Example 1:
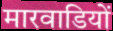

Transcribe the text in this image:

मारवाडियों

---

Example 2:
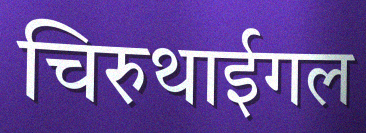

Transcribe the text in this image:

चिरुथाईगल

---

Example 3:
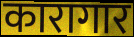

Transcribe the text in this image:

कारागार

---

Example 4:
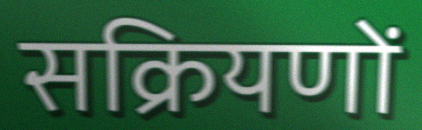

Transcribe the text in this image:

सक्रियणों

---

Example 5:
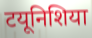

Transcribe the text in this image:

टयूनिशिया